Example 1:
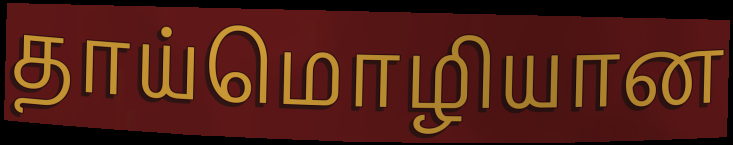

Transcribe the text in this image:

தாய்மொழியான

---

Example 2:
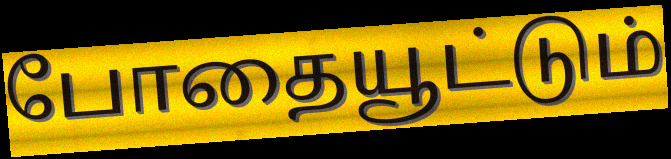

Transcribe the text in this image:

போதையூட்டும்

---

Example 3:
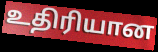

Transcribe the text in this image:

உதிரியான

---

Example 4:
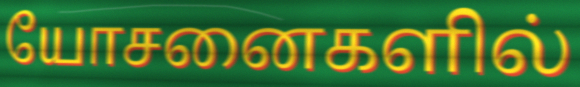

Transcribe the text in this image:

யோசனைகளில்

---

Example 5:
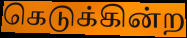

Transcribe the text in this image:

கெடுக்கின்ற